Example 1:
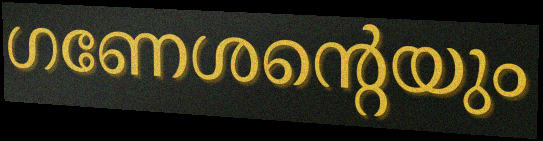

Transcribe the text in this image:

ഗണേശന്റെയും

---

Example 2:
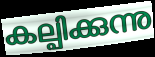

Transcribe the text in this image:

കല്പിക്കുന്നു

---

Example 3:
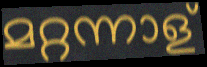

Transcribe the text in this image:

മറ്റന്നാള്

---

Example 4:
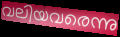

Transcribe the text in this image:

വലിയവരെന്നു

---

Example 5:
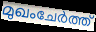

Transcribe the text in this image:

മുഖംചേർത്ത്